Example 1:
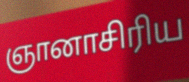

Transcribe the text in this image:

ஞானாசிரிய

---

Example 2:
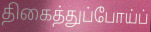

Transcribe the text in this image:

திகைத்துப்போய்ப்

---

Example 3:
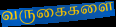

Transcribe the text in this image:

வருகைகளை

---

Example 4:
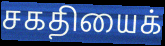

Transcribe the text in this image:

சகதியைக்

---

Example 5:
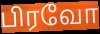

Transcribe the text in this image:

பிரவோ